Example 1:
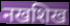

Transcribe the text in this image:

नखशिख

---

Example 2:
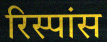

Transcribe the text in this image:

रिस्पांस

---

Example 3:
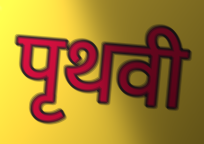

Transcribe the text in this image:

पृथवी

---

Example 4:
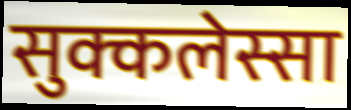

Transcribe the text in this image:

सुक्कलेस्सा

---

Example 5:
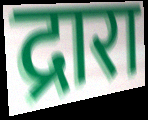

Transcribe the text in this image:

द्रारा